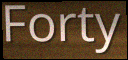
Forty